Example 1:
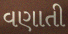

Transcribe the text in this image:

વણાતી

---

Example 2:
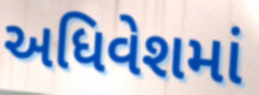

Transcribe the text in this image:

અધિવેશમાં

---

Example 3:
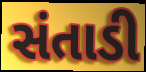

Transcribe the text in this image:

સંતાડી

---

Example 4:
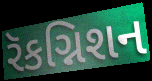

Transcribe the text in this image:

રૅકગ્નિશન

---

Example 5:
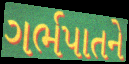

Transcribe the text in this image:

ગર્ભપાતને